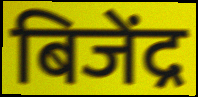
बिजेंद्र